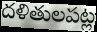
దళితులపట్ల